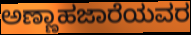
ಅಣ್ಣಾಹಜಾರೆಯವರ